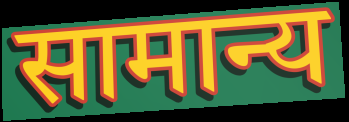
सामान्य